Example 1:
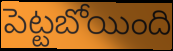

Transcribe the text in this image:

పెట్టబోయింది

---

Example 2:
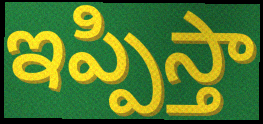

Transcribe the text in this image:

ఇప్పిస్తా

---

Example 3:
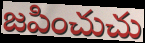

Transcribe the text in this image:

జపించుచు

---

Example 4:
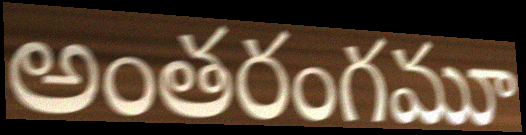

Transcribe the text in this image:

అంతరంగమూ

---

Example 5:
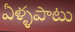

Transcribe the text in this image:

ఏళ్ళపాటు